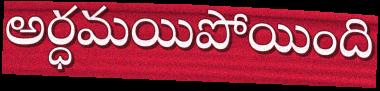
అర్ధమయిపోయింది